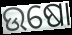
ଉଷୋ